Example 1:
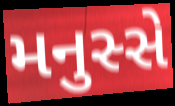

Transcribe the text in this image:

મનુસ્સે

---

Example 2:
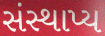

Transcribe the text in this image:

સંસ્થાપ્ય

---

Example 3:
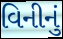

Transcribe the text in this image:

વિનીનું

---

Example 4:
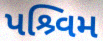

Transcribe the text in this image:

પશ્ર્વિમ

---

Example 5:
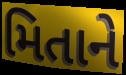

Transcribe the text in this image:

મિતાને